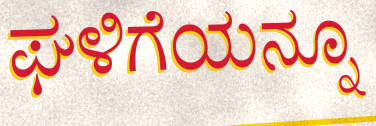
ಘಳಿಗೆಯನ್ನೂ